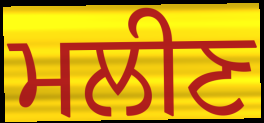
ਮਲੀਣ